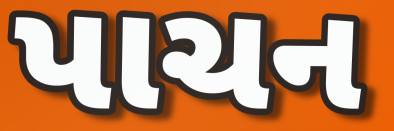
પાચન